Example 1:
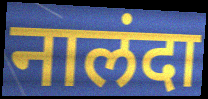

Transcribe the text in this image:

नालंदा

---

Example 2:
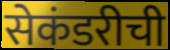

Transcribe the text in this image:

सेकंडरीची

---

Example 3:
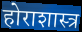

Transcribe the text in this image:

होराशास्त्र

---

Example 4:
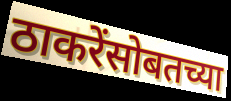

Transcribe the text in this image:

ठाकरेंसोबतच्या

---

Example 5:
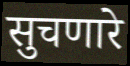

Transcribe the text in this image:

सुचणारे